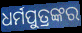
ଧର୍ମପୁତ୍ରଙ୍କର